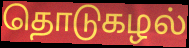
தொடுகழல்